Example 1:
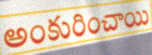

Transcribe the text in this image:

అంకురించాయి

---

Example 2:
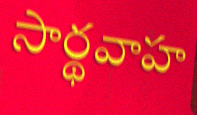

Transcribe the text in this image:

సార్థవాహ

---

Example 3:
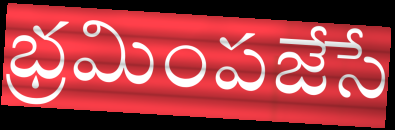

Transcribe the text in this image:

భ్రమింపజేసే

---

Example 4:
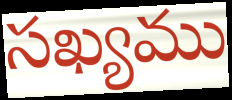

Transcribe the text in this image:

సఖ్యము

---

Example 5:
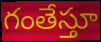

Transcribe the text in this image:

గంతేస్తూ